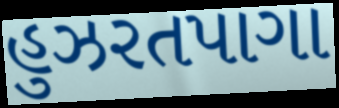
હુઝરતપાગા